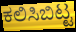
ಕಲಿಸಿಬಿಟ್ಟ